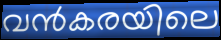
വൻകരയിലെ